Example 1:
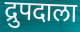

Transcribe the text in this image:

द्रुपदाला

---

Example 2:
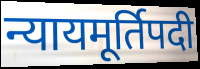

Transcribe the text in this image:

न्यायमूर्तिपदी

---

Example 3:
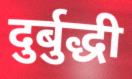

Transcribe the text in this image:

दुर्बुद्धी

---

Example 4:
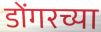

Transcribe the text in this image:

डोंगरच्या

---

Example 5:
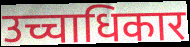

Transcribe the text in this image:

उच्चाधिकार